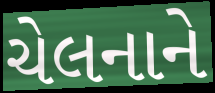
ચેલનાને